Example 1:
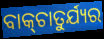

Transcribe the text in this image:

ବାକ୍‍ଚାତୁର୍ଯ୍ୟର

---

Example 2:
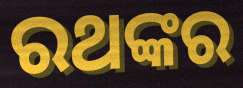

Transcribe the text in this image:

ରଥଙ୍କର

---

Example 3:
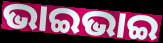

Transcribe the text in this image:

ଭାଇଭାଇ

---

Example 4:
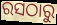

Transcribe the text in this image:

ରସଠାରୁ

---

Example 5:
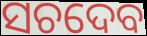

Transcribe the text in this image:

ସଚଦେବ